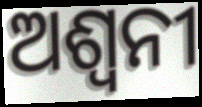
ଅଶ୍ୱନୀ